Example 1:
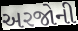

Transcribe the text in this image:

અરજોની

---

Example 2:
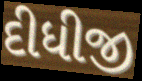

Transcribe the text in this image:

દીધીજી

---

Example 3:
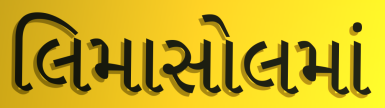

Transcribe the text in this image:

લિમાસોલમાં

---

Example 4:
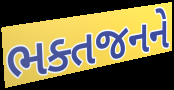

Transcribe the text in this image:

ભક્તજનને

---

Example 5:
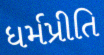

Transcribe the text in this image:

ધર્મપ્રીતિ